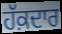
ਹੱਕ਼ਦਾਰ